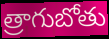
త్రాగుబోతు